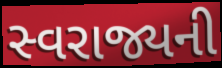
સ્વરાજ્યની